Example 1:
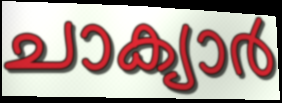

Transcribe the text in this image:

ചാക്യാർ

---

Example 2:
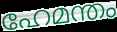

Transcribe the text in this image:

ഹേമന്തം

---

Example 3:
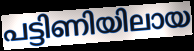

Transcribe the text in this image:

പട്ടിണിയിലായ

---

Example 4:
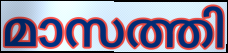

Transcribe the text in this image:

മാസത്തി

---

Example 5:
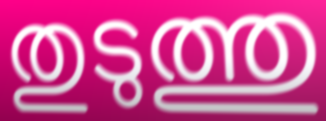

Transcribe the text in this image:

തുടുത്തു